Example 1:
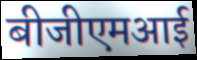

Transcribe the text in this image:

बीजीएमआई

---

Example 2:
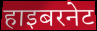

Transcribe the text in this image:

हाइबरनेट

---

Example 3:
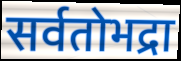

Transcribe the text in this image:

सर्वतोभद्रा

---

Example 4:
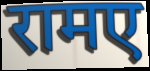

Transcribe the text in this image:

रामए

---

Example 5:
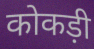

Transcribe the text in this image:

कोकड़ी